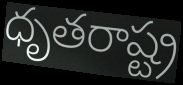
ధృతరాష్ట్ర